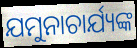
ଯମୁନାଚାର୍ଯ୍ୟଙ୍କ